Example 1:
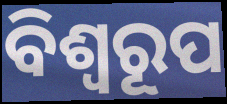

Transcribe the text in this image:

ବିଶ୍ଵରୂପ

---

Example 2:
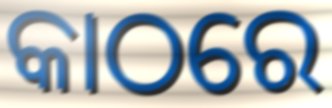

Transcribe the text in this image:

କାଠରେ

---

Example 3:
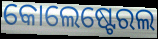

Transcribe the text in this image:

କୋଲେଷ୍ଟେରଲ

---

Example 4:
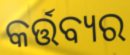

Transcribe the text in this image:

କର୍ତ୍ତବ୍ୟର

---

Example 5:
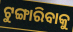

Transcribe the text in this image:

ଟୁଙ୍ଗାରିବାକୁ